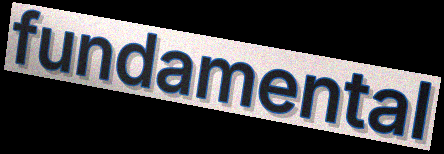
fundamental